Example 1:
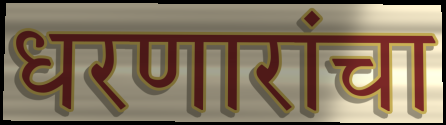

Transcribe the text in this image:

धरणारांचा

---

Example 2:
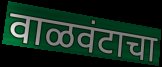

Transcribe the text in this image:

वाळवंटाचा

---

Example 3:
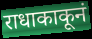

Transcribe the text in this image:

राधाकाकूनं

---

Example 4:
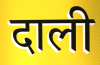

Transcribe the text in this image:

दाली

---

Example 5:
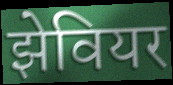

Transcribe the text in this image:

झेवियर